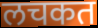
लचकत